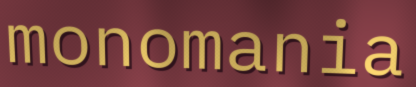
monomania